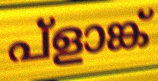
പ്ളാങ്ക്